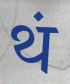
थं